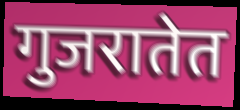
गुजरातेत